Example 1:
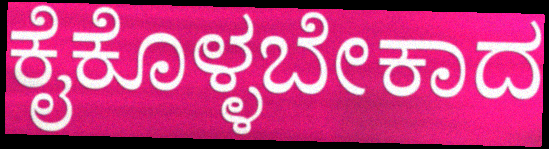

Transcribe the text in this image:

ಕೈಕೊಳ್ಳಬೇಕಾದ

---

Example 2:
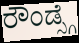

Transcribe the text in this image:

ರೌಂಡ್ಸ್ಗೆ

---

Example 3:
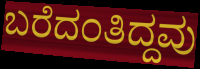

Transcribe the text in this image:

ಬರೆದಂತಿದ್ದವು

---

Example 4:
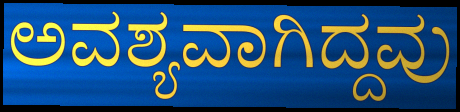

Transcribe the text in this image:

ಅವಶ್ಯವಾಗಿದ್ದವು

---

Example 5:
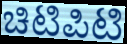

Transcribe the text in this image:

ಚಿಟಿಪಿಟಿ